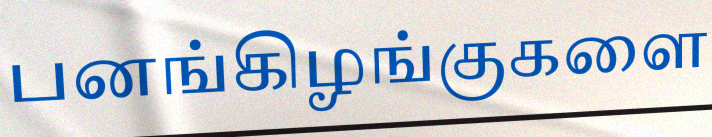
பனங்கிழங்குகளை